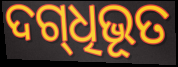
ଦଗ୍‍ଧିଭୂତ